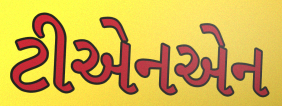
ટીએનએન